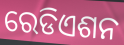
ରେଡିଏଶନ